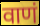
वाणं